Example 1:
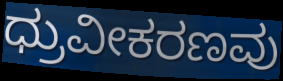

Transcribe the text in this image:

ಧ್ರುವೀಕರಣವು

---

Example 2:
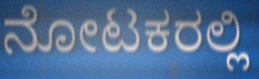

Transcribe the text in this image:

ನೋಟಕರಲ್ಲಿ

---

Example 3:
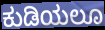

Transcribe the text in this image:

ಕುಡಿಯಲೂ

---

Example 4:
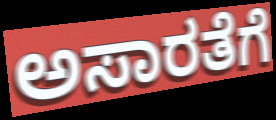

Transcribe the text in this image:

ಅಸಾರತೆಗೆ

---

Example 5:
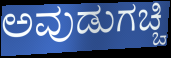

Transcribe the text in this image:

ಅವುಡುಗಚ್ಚಿ